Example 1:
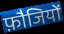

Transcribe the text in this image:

फ़ौजियों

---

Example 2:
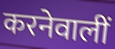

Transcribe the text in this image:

करनेवालीं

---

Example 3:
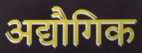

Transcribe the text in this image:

अद्यौगिक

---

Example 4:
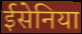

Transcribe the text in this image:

ईसेनिया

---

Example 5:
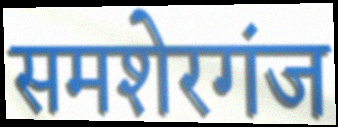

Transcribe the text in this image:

समशेरगंज